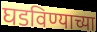
घडविण्याच्या